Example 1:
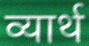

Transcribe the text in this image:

व्यार्थ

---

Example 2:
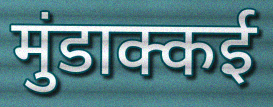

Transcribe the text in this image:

मुंडाक्कई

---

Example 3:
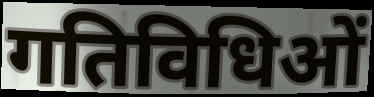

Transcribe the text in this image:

गतिविधिओं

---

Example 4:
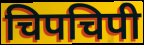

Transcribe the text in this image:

चिपचिपी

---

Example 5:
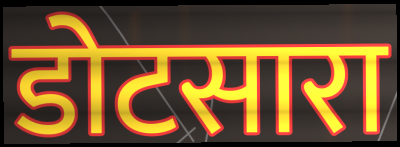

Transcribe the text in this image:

डोटसारा